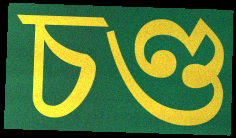
চণ্ড